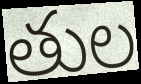
తుల